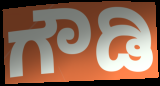
ಗೌಡಿ